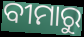
ବୀମାରୁ